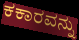
ಕಕಾರವನ್ನು